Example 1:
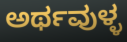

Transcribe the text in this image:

ಅರ್ಥವುಳ್ಳ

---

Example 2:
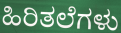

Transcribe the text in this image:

ಹಿರಿತಲೆಗಳು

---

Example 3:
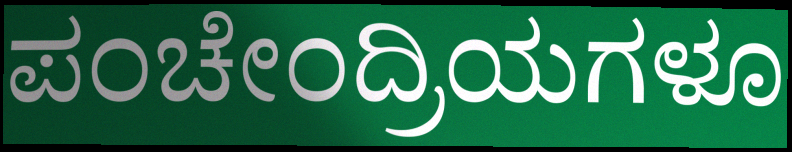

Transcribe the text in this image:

ಪಂಚೇಂದ್ರಿಯಗಳೂ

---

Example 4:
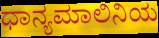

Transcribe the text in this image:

ಧಾನ್ಯಮಾಲಿನಿಯ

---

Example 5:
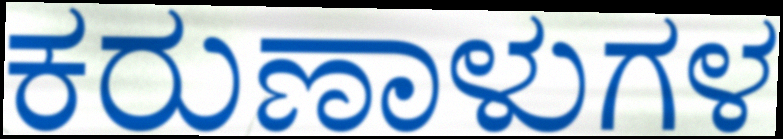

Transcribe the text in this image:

ಕರುಣಾಳುಗಳ